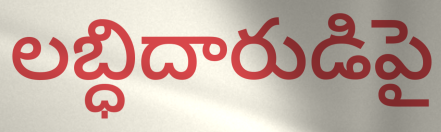
లబ్ధిదారుడిపై